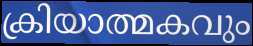
ക്രിയാത്മകവും